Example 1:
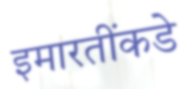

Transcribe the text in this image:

इमारतींकडे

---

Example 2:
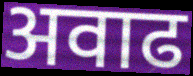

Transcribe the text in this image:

अवाढ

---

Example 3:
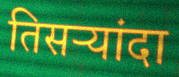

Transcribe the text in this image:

तिसऱ्यांदा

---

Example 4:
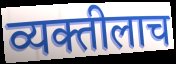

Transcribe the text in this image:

व्यक्तीलाच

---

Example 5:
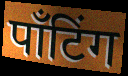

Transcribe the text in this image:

पाँटिंग